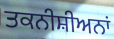
ਤਕਨੀਸ਼ੀਅਨਾਂ